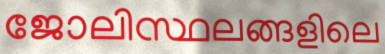
ജോലിസ്ഥലങ്ങളിലെ